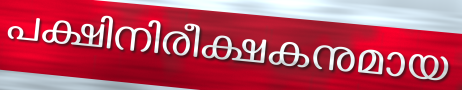
പക്ഷിനിരീക്ഷകനുമായ